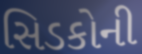
સિડકોની